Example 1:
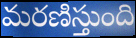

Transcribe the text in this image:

మరణిస్తుంది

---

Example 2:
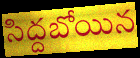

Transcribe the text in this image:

సిద్దబోయిన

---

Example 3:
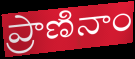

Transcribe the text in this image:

ప్రాణినాం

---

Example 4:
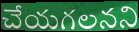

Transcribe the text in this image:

చేయగలనని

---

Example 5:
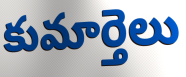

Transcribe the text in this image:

కుమార్తెలు